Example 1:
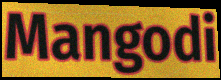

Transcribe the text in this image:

Mangodi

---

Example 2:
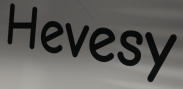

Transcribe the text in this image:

Hevesy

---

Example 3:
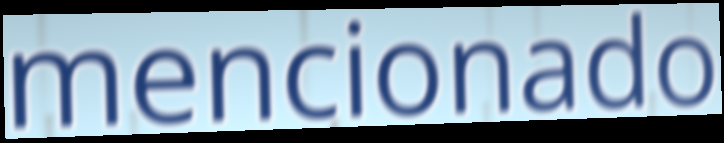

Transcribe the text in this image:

mencionado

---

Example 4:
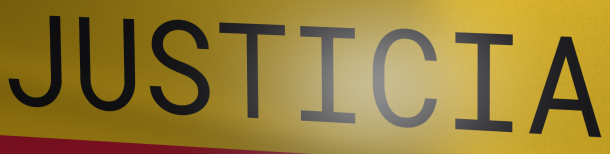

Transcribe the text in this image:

JUSTICIA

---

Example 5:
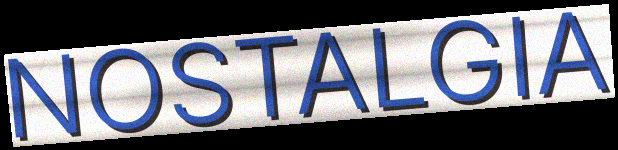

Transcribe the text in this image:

NOSTALGIA